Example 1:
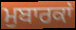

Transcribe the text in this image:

ਮੁਬਾਰਕਾਂ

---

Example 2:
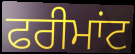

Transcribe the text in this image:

ਫਰੀਮਾਂਟ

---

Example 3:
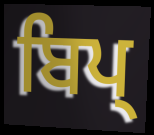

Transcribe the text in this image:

ਬਿਪ੍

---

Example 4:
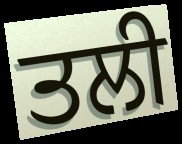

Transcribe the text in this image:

ਤਲੀ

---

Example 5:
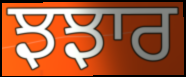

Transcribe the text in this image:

ਝਝਾਰ